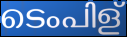
ടെംപിള്